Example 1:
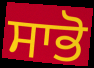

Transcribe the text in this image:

ਸਾਭੋ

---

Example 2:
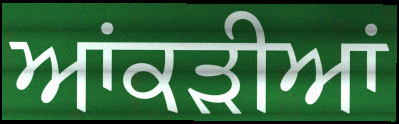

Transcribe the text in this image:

ਆਂਕੜੀਆਂ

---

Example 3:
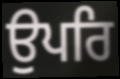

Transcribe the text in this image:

ਉਪਰਿ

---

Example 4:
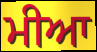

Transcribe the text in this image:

ਮੀਆ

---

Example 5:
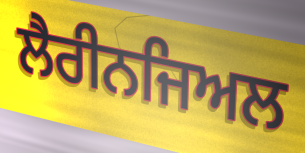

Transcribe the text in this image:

ਲੈਰੀਨਜਿਅਲ